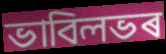
ভাবিলভৰ